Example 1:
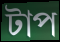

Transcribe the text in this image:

টাপ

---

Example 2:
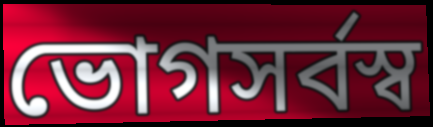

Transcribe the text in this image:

ভোগসর্বস্ব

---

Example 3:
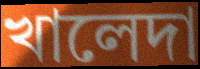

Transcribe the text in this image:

খালেদা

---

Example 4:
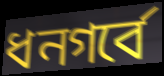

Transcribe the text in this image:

ধনগর্বে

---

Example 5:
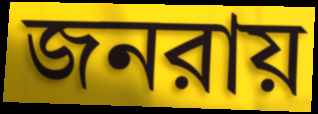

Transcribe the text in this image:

জনরায়